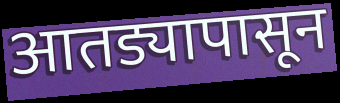
आतड्यापासून